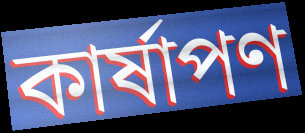
কার্ষাপণ